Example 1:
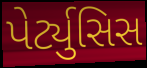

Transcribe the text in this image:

પેર્ટ્યુસિસ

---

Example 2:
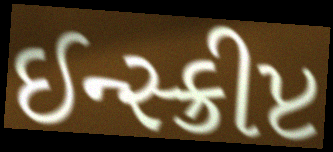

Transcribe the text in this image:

ઈન્સ્ક્રીપ્ટ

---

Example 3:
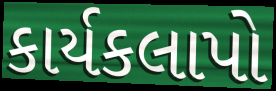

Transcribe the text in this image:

કાર્યકલાપો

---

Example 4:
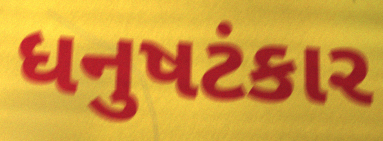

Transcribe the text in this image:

ધનુષટંકાર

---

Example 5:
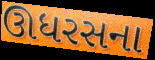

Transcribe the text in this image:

ઊધરસના